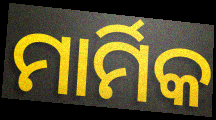
ମାର୍ମିକ